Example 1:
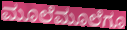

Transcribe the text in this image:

ಮೂಲೆಮೂಲೆಗೂ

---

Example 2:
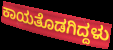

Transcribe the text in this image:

ಕಾಯತೊಡಗಿದ್ದಳು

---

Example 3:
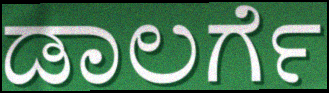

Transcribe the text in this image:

ಡಾಲರ್ಗೆ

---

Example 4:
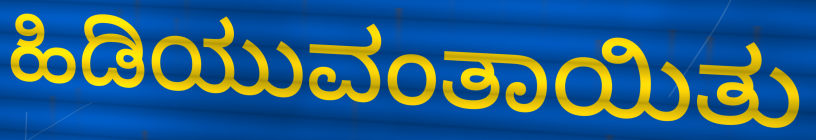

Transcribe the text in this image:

ಹಿಡಿಯುವಂತಾಯಿತು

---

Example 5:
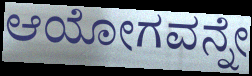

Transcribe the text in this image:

ಆಯೋಗವನ್ನೇ